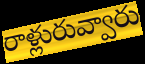
రాళ్లురువ్వారు